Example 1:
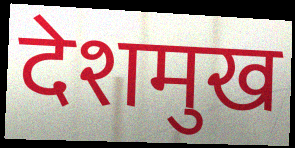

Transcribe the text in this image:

देशमुख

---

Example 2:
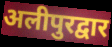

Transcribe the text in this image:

अलीपुरद्वार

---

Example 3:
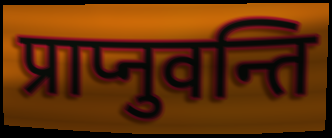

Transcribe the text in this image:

प्राप्नुवन्ति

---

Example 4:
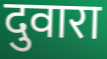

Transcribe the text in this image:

दुवारा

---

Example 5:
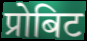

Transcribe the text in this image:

प्रोबिट